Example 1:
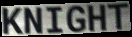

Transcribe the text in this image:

KNIGHT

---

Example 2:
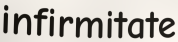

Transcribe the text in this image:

infirmitate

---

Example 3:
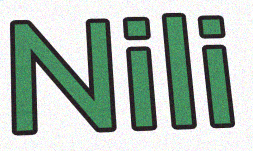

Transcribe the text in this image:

Nili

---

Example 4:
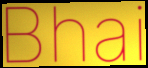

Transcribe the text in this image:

Bhai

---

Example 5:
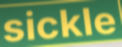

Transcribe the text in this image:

sickle